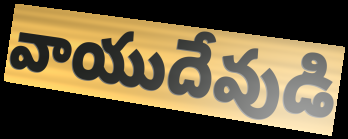
వాయుదేవుడి